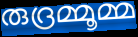
രുദ്രമ്മൂമ്മ